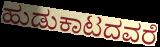
ಹುಡುಕಾಟದವರೆ